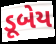
ડૂબેય